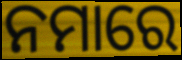
ନମାରେ